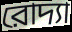
রোদ্যা